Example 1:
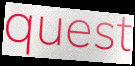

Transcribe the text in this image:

quest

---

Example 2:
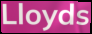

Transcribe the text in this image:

Lloyds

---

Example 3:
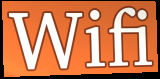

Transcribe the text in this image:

Wifi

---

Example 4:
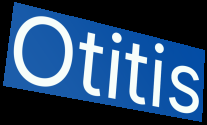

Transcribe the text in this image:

Otitis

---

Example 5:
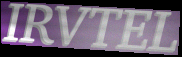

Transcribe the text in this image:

IRVTEL